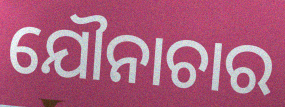
ଯୌନାଚାର